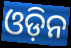
ଓଡ଼ିନ